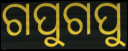
ଗପୁଗପୁ